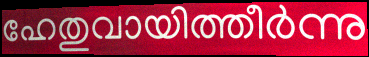
ഹേതുവായിത്തീർന്നു